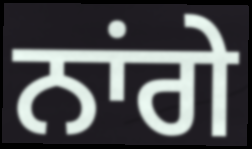
ਨਾਂਗੇ